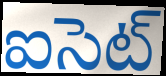
ఐసెట్